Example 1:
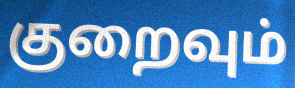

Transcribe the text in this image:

குறைவும்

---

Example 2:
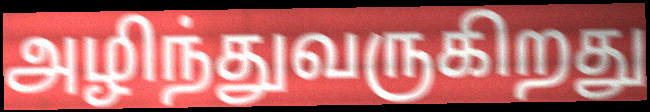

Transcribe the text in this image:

அழிந்துவருகிறது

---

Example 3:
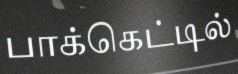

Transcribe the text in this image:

பாக்கெட்டில்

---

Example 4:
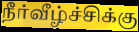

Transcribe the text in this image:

நீர்வீழ்ச்சிக்கு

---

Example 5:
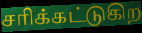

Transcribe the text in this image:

சரிக்கட்டுகிற